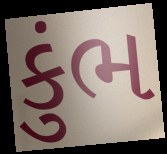
કુંભ